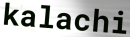
kalachi